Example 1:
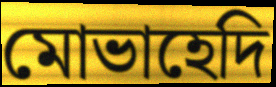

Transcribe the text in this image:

মোভাহেদি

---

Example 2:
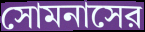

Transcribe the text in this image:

সোমনাসের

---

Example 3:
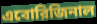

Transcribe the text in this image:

এবোরিজিনাল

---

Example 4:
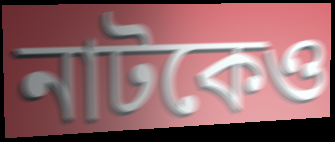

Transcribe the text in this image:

নাটকেও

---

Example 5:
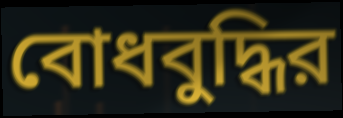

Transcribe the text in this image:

বোধবুদ্ধির